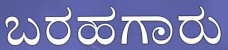
ಬರಹಗಾರು